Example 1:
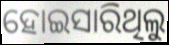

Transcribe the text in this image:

ହୋଇସାରିଥିଲୁ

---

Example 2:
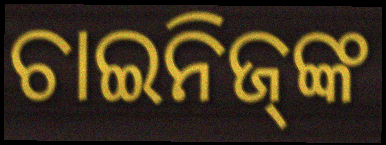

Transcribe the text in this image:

ଚାଇନିଜ୍‌ଙ୍କ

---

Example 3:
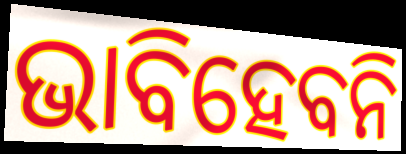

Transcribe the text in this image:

ଭାବିହେବନି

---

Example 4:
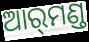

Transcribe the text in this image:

ଆର୍‌ମଣ୍ଡ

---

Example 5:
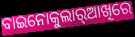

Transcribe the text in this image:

ବାଇନୋକୁଲାର୍‌ଆଖିରେ